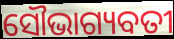
ସୌଭାଗ୍ୟବତୀ